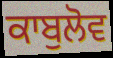
ਕਾਬੁਲੋਵ